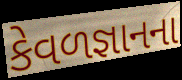
કેવળજ્ઞાનના